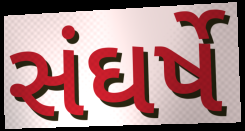
સંઘર્ષે